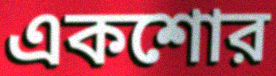
একশোর